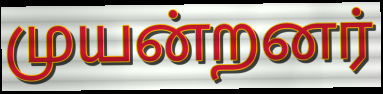
முயன்றனர்